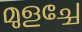
മുളച്ചേ